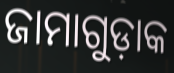
ଜାମାଗୁଡ଼ାକ